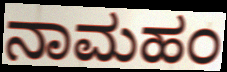
ನಾಮಹಂ